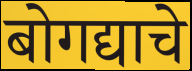
बोगद्याचे